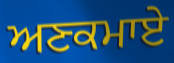
ਅਣਕਮਾਏ